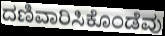
ದಣಿವಾರಿಸಿಕೊಂಡೆವು